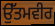
ਉੱਤਮਵੀਰ